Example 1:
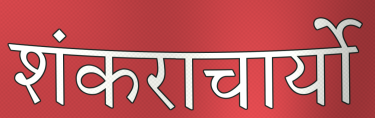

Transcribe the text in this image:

शंकराचार्यो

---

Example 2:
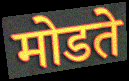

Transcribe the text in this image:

मोडते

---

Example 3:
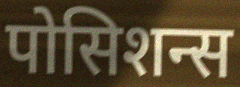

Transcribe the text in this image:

पोसिशन्स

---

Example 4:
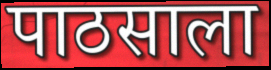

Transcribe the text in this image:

पाठसाला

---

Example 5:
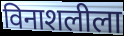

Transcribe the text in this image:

विनाशलीला